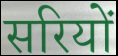
सरियों